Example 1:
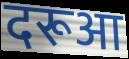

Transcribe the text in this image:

दरूआ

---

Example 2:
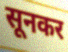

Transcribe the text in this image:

सूनकर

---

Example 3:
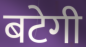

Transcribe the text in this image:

बटेगी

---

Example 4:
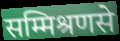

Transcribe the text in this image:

सम्मिश्रणसे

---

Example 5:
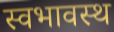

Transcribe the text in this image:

स्वभावस्थ